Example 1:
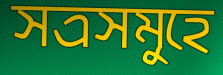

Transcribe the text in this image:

সত্ৰসমুহে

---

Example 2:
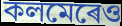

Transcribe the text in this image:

কলমেৰেও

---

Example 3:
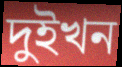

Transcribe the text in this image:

দুইখন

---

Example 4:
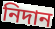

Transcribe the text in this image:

নিদান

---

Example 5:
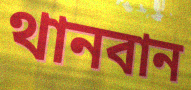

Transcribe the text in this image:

থানবান